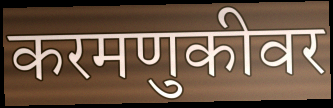
करमणुकीवर